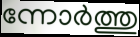
ന്നോർത്തു